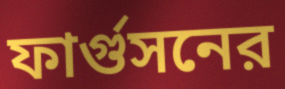
ফার্গুসনের